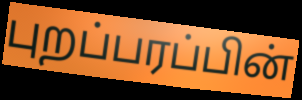
புறப்பரப்பின்